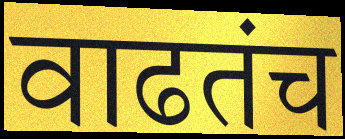
वाढतंच